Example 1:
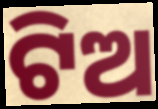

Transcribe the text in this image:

ଟିଅ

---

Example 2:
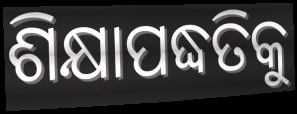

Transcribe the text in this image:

ଶିକ୍ଷାପଦ୍ଧତିକୁ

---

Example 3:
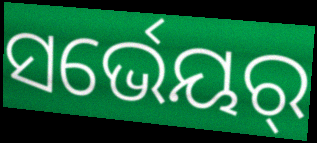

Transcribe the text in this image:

ସର୍ଭେୟର୍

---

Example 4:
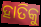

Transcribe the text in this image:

ହାତିକୁ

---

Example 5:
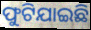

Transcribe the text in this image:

ଫୁଟିଯାଇଛି